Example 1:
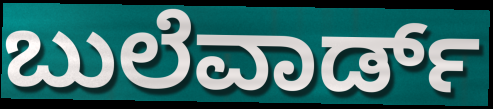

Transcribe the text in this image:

ಬುಲೆವಾರ್ಡ್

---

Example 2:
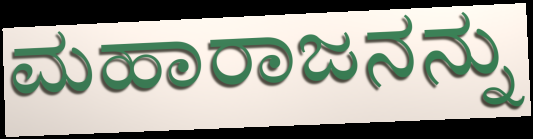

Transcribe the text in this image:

ಮಹಾರಾಜನನ್ನು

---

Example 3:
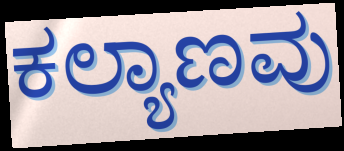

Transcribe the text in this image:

ಕಲ್ಯಾಣವು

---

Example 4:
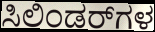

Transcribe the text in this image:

ಸಿಲಿಂಡರ್‌ಗಳ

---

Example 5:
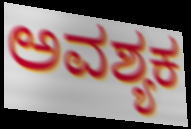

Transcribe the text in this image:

ಅವಶ್ಯಕ